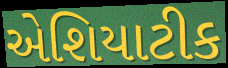
એશિયાટીક